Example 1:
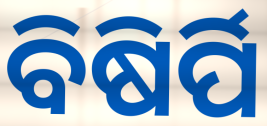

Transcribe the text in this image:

ବିଷିର୍ପି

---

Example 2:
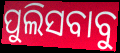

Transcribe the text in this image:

ପୁଲିସବାବୁ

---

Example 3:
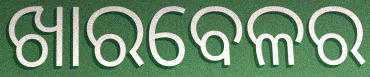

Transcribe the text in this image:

ଖାରବେଳର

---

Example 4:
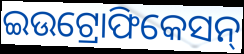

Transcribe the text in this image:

ଇଉଟ୍ରୋଫିକେସନ୍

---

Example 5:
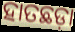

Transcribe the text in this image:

ହାତଛଡ଼ା